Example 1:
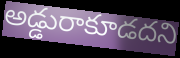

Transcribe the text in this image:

అడ్డురాకూడదని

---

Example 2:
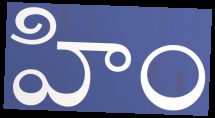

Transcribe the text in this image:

హిం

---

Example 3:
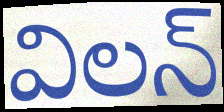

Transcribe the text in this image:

విలన్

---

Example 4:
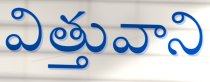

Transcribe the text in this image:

విత్తువాని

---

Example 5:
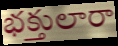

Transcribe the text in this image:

భక్తులారా